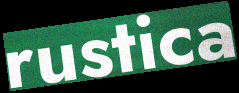
rustica